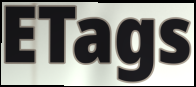
ETags